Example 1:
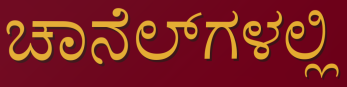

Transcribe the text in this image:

ಚಾನೆಲ್‍ಗಳಲ್ಲಿ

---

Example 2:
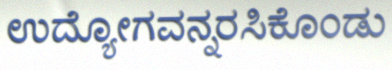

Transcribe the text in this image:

ಉದ್ಯೋಗವನ್ನರಸಿಕೊಂಡು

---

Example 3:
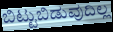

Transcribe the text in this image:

ಬಿಟ್ಟುಬಿಡುವುದಿಲ್ಲ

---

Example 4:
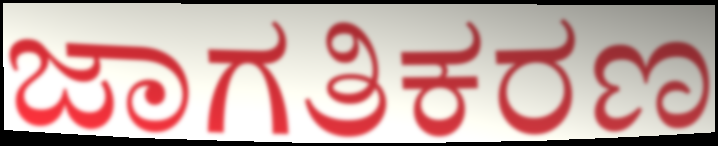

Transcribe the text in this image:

ಜಾಗತಿಕರಣ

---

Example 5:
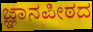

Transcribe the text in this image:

ಜ್ಞಾನಪೀಠದ